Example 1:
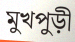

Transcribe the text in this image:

মুখপুড়ী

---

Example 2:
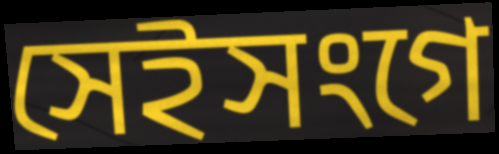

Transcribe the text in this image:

সেইসংগে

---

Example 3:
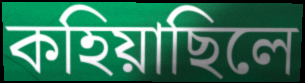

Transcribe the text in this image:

কহিয়াছিলে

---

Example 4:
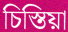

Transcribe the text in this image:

চিস্তিয়া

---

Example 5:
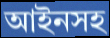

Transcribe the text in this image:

আইনসহ